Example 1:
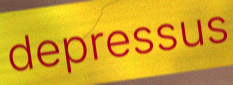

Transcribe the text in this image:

depressus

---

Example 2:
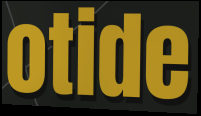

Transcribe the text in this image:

otide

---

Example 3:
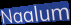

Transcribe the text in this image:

Naalum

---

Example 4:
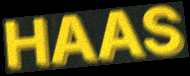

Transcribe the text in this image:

HAAS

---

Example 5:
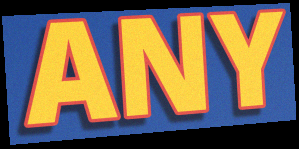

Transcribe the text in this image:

ANY